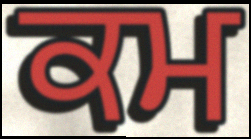
ਕਮ